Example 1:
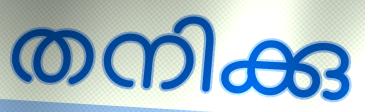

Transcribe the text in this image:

തനിക്കു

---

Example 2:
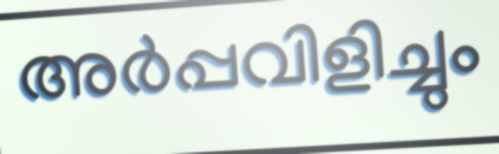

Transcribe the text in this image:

അർപ്പവിളിച്ചും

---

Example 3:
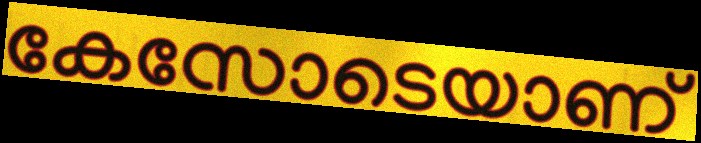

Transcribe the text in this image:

കേസോടെയാണ്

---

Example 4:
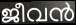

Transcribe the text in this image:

ജീവൻ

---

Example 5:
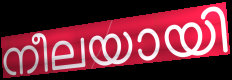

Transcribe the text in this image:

നീലയായി